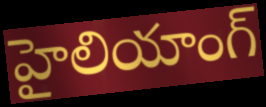
హైలియాంగ్